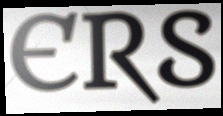
ERS